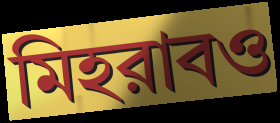
মিহরাবও